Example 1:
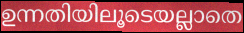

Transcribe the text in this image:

ഉന്നതിയിലൂടെയല്ലാതെ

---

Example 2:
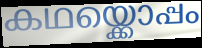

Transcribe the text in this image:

കഥയ്ക്കൊപ്പം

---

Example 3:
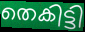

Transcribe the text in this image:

തെകിട്ടി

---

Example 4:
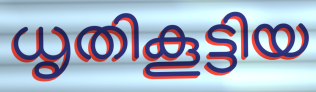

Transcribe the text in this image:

ധൃതികൂട്ടിയ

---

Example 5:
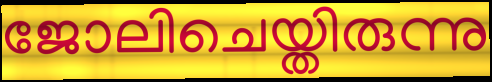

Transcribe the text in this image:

ജോലിചെയ്തിരുന്നു